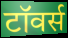
टॉवर्स